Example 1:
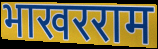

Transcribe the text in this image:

भाखरराम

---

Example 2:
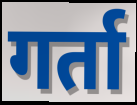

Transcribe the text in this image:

गर्ता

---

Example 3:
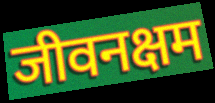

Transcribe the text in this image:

जीवनक्षम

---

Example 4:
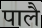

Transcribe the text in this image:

पालै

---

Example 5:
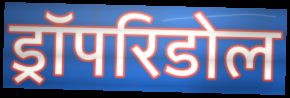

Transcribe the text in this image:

ड्रॉपरिडोल